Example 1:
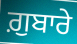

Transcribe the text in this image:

ਗ਼ੁਬਾਰੇ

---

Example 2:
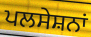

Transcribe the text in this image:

ਪਲਸੇਸ਼ਨਾਂ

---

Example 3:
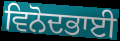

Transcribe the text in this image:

ਵਿਨੋਦਭਾਈ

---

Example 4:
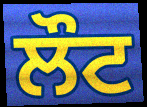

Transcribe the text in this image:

ਲੌਟ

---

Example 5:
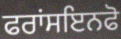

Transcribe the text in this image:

ਫਰਾਂਸਇਨਫੋ